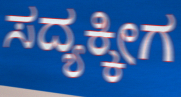
ಸದ್ಯಕ್ಕೀಗ